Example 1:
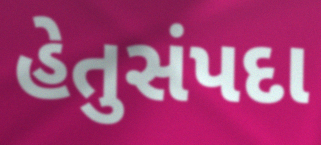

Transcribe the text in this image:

હેતુસંપદા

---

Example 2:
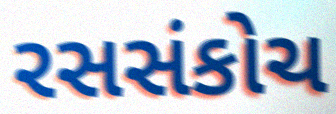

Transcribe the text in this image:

રસસંકોચ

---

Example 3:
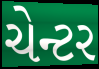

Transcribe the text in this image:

ચેન્ટર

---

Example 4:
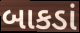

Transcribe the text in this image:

બાકડાં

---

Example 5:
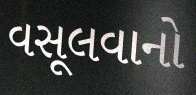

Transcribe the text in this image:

વસૂલવાનો